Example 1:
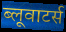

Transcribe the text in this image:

ब्लूवाटर्स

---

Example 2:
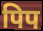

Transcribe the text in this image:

पिप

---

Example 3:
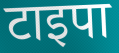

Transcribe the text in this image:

टाइपा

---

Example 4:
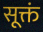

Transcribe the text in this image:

सूक्तं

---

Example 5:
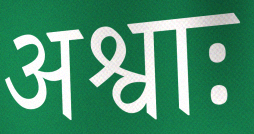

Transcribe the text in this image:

अश्वाः